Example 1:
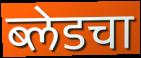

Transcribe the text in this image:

ब्लेडचा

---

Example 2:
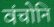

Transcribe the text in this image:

वंचोनि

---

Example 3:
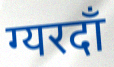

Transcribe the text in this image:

ग्यरदाँ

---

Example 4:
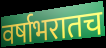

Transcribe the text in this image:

वर्षाभरातच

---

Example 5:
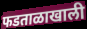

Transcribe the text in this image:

फडताळाखाली